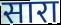
सारा